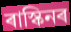
ৰাস্কিনৰ